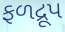
ફળદ્રૂપ